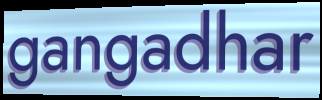
gangadhar